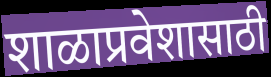
शाळाप्रवेशासाठी